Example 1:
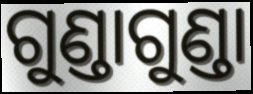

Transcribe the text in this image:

ଗୁଣ୍ଡାଗୁଣ୍ଡା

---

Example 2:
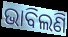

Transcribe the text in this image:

ଭାବିଲଣି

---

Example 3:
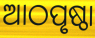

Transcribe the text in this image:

ଆଠପୃଷ୍ଠା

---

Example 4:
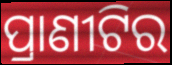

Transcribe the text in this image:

ପ୍ରାଣୀଟିର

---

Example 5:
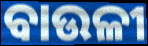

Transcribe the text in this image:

ବାଉଳୀ